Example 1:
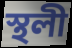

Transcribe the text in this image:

স্থলী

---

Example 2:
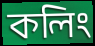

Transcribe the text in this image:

কলিং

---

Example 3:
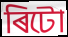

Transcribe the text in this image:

ৰিটো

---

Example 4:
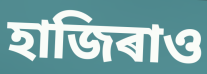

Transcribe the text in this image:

হাজিৰাও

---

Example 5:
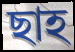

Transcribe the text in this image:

ছাহ